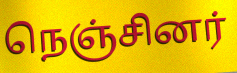
நெஞ்சினர்